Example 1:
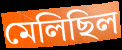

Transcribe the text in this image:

মেলিছিল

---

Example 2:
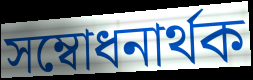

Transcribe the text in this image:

সম্বোধনাৰ্থক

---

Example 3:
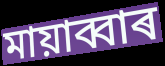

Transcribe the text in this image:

মায়াব্বাৰ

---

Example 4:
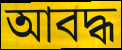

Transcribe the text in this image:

আবদ্ধ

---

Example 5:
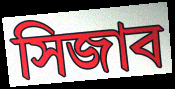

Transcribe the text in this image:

সিজাব